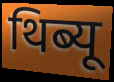
थिब्यू